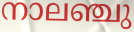
നാലഞ്ചു